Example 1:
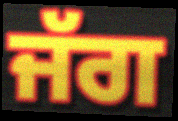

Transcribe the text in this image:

ਜੱਗ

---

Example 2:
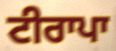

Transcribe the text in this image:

ਟੀਰਾਪਾ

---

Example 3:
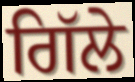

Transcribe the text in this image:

ਗਿੱਲੇ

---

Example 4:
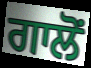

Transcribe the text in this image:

ਗਾਲੋਂ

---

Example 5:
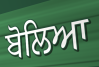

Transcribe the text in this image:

ਬੋਲਿਆ